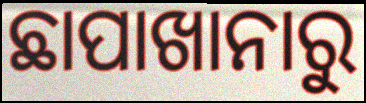
ଛାପାଖାନାରୁ